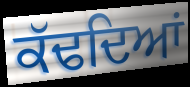
ਕੱਢਦਿਆਂ